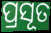
ପ୍ରସୂତ